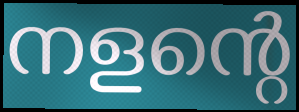
നളന്റെ